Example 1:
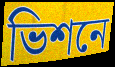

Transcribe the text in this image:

ভিশনে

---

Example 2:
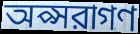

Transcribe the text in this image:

অপ্সরাগণ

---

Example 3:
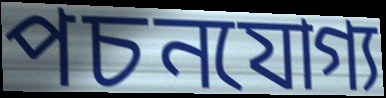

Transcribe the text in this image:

পচনযোগ্য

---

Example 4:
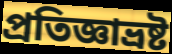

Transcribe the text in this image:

প্রতিজ্ঞাভ্রষ্ট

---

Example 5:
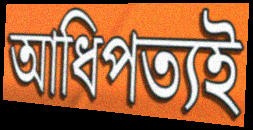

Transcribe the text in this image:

আধিপত্যই